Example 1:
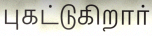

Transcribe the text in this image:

புகட்டுகிறார்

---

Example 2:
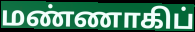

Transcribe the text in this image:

மண்ணாகிப்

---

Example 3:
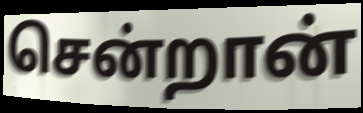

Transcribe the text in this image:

சென்றான்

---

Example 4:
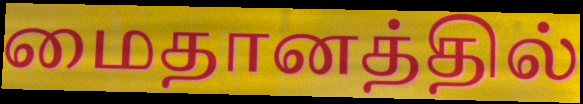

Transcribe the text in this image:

மைதானத்தில்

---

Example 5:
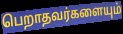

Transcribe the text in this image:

பெறாதவர்களையும்